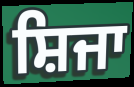
ਸ਼ਿਜਾ